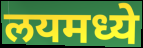
लयमध्ये